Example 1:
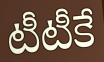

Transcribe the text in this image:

టీటీకే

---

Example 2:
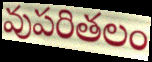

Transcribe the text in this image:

వుపరితలం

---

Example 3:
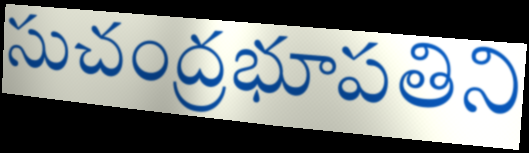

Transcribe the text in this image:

సుచంద్రభూపతిని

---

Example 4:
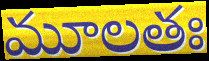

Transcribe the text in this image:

మూలతః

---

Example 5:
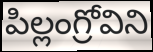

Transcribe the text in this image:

పిల్లంగ్రోవిని